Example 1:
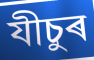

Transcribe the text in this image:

যীচুৰ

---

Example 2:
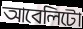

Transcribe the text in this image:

আবেলিটো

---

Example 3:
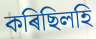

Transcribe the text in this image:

কৰিছিলহি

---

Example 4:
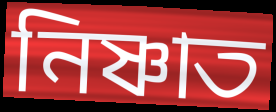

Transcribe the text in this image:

নিষ্ণাত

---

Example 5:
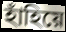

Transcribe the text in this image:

হাঁহিয়ে